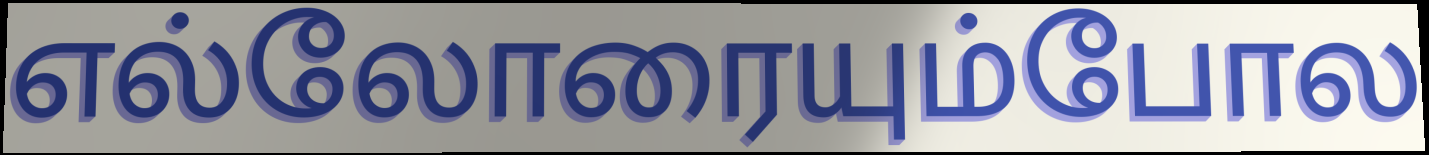
எல்லோரையும்போல